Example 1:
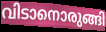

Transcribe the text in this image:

വിടാനൊരുങ്ങി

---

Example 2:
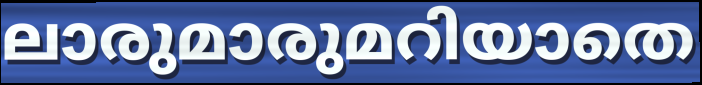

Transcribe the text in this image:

ലാരുമാരുമറിയാതെ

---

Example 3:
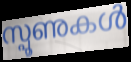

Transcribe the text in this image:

സ്പൂണുകൾ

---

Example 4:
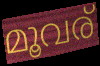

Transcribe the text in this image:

മൂവര്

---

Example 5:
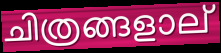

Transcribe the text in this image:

ചിത്രങ്ങളാല്